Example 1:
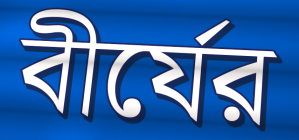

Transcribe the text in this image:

বীর্যের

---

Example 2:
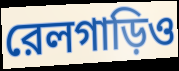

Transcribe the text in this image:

রেলগাড়িও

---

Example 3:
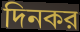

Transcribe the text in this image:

দিনকর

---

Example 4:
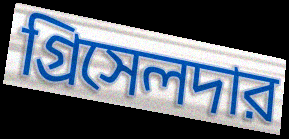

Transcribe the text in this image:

গ্রিসেলদার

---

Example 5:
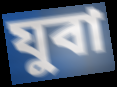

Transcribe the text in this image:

যুবা